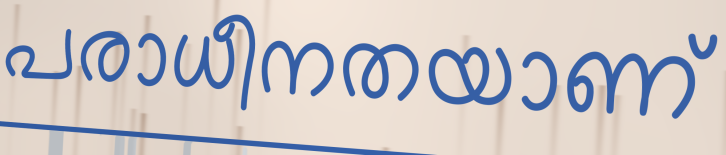
പരാധീനതയാണ്